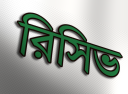
রিসিভ